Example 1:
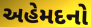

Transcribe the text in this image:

અહેમદનો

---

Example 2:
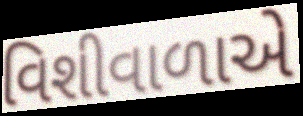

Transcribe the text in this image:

વિશીવાળાએ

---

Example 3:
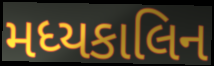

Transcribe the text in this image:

મધ્યકાલિન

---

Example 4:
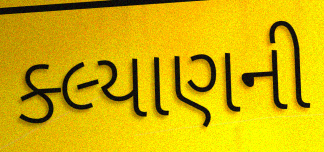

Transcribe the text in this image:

ક્લ્યાણની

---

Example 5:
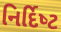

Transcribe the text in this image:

નિર્દિષ્‍ટ